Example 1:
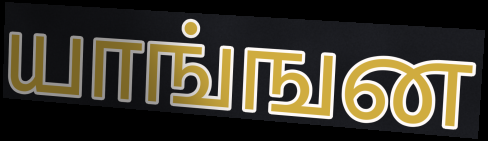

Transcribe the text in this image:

யாங்ஙன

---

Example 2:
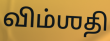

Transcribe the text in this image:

விம்ஶதி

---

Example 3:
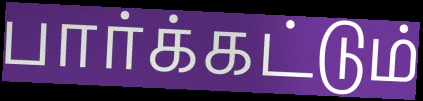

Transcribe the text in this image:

பார்க்கட்டும்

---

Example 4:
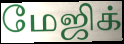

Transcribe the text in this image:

மேஜிக்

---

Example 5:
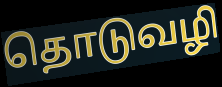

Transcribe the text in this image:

தொடுவழி